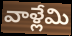
వాళ్లేమి